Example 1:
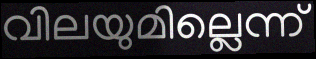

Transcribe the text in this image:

വിലയുമില്ലെന്ന്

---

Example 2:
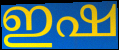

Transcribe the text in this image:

ഇഷ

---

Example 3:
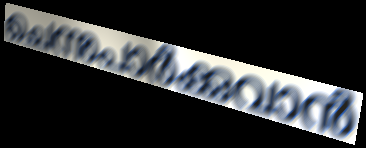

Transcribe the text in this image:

ചെന്നുപാർക്കുവാൻ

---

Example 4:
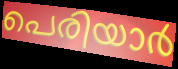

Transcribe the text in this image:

പെരിയാർ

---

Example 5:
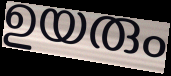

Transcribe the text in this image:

ഉയരും